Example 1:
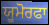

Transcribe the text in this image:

ਯੂਮੋਰਫਾ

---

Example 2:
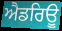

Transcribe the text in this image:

ਐਡਰਿਊ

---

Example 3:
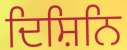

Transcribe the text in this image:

ਦਿਸ਼ਿਨਿ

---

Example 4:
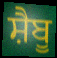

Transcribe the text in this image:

ਸ਼ੈਬੂ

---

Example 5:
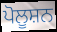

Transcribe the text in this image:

ਪੋਲੂਸ਼ਨ